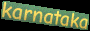
karnataka